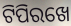
ଟିପିରଖେ